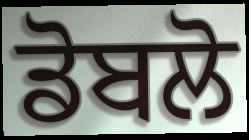
ਡੋਬਲੋ